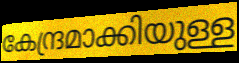
കേന്ദ്രമാക്കിയുള്ള